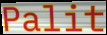
Palit